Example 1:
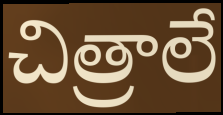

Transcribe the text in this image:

చిత్రాలే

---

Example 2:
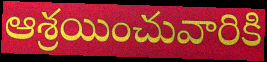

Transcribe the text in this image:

ఆశ్రయించువారికి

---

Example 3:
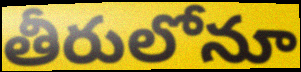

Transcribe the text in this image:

తీరులోనూ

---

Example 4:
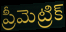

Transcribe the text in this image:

ప్రీమెట్రిక్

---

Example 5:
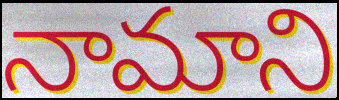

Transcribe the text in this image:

నామాని